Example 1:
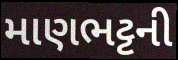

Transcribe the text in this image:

માણભટ્ટની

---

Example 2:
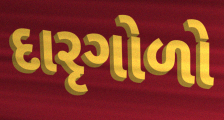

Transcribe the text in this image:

દારૃગોળો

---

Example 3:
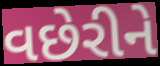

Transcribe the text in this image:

વછેરીને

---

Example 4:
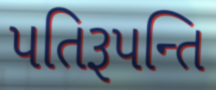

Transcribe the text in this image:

પતિરૂપન્તિ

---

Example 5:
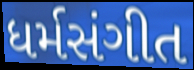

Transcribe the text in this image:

ધર્મસંગીત